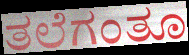
ತಲೆಗಂತೂ